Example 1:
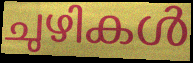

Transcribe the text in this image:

ചുഴികൾ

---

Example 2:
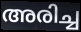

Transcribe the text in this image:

അരിച്ച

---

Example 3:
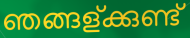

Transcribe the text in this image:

ഞങ്ങള്ക്കുണ്ട്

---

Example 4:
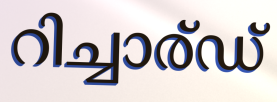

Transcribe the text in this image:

റിച്ചാര്ഡ്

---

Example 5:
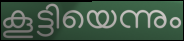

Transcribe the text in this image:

കൂട്ടിയെന്നും